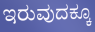
ಇರುವುದಕ್ಕೂ